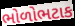
ભોળોભટાક